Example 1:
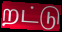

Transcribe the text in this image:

றட்டு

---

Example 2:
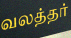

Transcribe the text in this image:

வலத்தர்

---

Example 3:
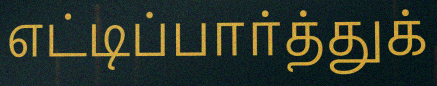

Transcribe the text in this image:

எட்டிப்பார்த்துக்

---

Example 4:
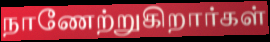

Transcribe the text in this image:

நாணேற்றுகிறார்கள்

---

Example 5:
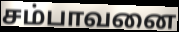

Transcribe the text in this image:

சம்பாவனை